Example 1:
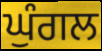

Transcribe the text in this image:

ਘੁੰਗਲ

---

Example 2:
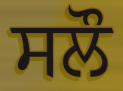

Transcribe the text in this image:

ਸਲੌ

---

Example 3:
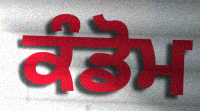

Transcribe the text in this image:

ਕੰਡੋਮ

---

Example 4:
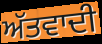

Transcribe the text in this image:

ਅੱਤਵਾਦੀ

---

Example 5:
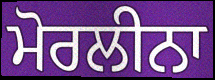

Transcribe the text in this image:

ਮੋਰਲੀਨਾ